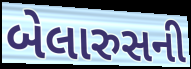
બેલારુસની